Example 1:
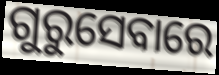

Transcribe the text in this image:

ଗୁରୁସେବାରେ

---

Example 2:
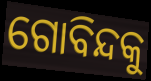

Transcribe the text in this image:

ଗୋବିନ୍ଦକୁ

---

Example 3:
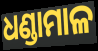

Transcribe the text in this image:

ଧଣ୍ଡାମାଳ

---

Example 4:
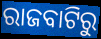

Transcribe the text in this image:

ରାଜବାଟିରୁ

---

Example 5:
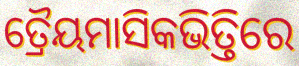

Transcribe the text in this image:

ତ୍ରୈୟମାସିକଭିତ୍ତିରେ